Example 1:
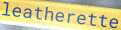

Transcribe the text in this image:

leatherette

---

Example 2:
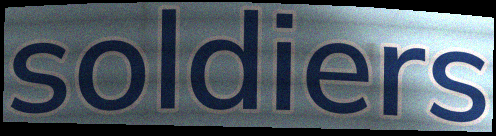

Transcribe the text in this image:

soldiers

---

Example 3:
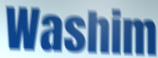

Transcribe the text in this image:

Washim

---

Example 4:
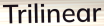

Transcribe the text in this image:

Trilinear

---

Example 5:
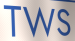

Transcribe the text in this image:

TWS